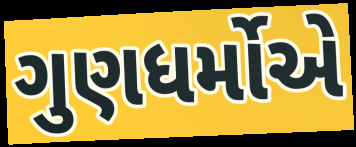
ગુણધર્મોએ